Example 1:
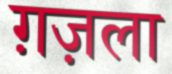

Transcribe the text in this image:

ग़ज़ला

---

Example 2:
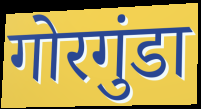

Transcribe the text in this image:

गोरगुंडा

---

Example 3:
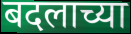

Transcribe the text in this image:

बदलाच्या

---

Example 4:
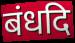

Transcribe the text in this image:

बंधदि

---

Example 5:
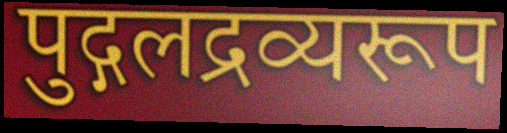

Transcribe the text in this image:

पुद्गलद्रव्यरूप